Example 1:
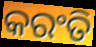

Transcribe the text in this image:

କରଂତି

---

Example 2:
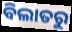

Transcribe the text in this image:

ବିଲାତରୁ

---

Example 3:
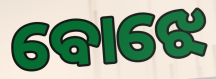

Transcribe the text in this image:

ବୋଝେ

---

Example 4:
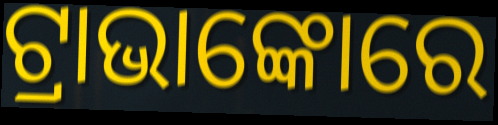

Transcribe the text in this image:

ଟ୍ରାଭାଙ୍କୋରେ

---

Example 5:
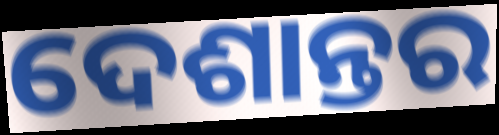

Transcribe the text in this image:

ଦେଶାନ୍ତର